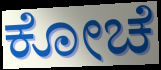
ಕೋಚೆ